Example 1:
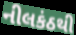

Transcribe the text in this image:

નીલકંઠથી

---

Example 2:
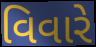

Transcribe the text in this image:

વિવારે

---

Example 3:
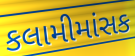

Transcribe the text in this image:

કલામીમાંસક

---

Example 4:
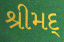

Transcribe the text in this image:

શ્રીમદ્‍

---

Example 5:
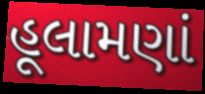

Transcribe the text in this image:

હૂલામણાં